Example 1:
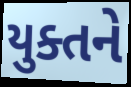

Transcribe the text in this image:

યુક્તને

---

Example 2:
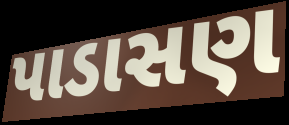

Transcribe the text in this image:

પાડાસણ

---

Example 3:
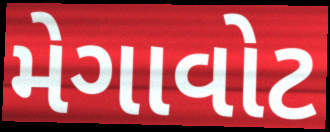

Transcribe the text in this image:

મેગાવોટ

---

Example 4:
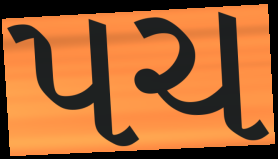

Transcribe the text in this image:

પચ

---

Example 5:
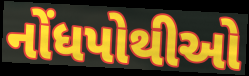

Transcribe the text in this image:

નોંધપોથીઓ